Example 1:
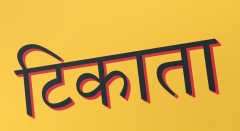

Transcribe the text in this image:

टिकाता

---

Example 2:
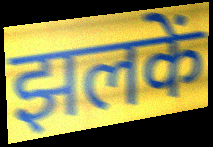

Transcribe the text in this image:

झलकें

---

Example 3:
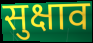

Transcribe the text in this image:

सुक्षाव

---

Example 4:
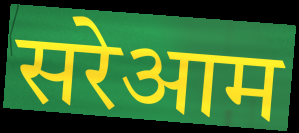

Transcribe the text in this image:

सरेआम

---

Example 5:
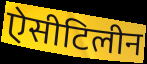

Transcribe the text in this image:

ऐसीटिलीन